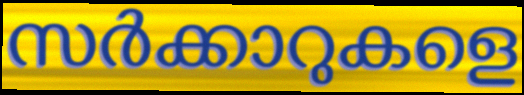
സർക്കാറുകളെ